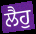
ਲੈਹੁ